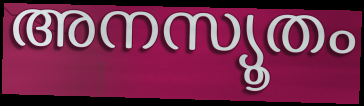
അനസ്യൂതം